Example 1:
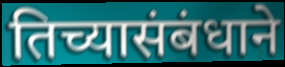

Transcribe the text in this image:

तिच्यासंबंधाने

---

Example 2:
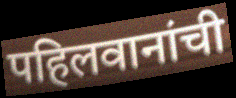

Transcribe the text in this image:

पहिलवानांची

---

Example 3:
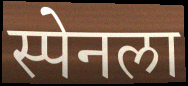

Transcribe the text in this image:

स्पेनला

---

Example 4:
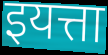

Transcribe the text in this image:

इयत्ता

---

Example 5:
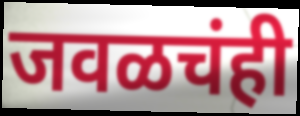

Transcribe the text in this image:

जवळचंही